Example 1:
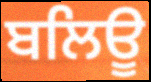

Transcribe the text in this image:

ਬਲਿਊ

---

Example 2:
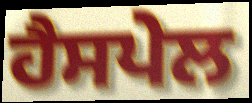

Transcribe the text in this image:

ਹੈਸਪੇਲ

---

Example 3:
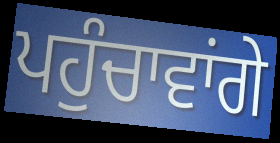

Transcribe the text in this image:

ਪਹੁੰਚਾਵਾਂਗੇ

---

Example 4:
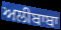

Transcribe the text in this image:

ਅਲੀਬਾਬਾ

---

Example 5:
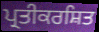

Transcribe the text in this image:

ਪ੍ਰਤੀਕਰਸ਼ਿਤ